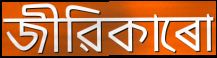
জীৱিকাৰো